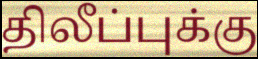
திலீப்புக்கு